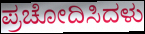
ಪ್ರಚೋದಿಸಿದಳು